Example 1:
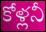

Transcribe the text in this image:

కోళ్లనీ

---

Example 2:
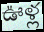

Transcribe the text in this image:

ఊళ్ల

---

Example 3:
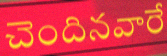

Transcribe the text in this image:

చెందినవారే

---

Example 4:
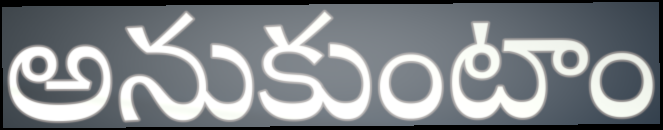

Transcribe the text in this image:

అనుకుంటాం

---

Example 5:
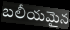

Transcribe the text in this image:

బలీయమైన